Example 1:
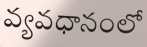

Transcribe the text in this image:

వ్యవధానంలో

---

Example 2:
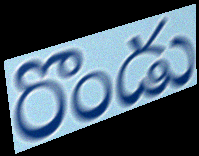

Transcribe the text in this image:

రొండు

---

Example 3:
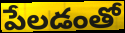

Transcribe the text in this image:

పేలడంతో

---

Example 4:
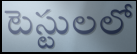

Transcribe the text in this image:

టెస్టులలో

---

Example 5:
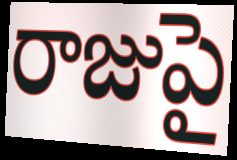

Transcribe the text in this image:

రాజుపై